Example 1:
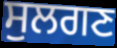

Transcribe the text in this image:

ਸੁਲਗਣ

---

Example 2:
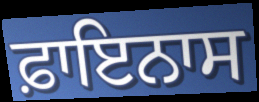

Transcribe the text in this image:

ਫ਼ਾਇਨਾਸ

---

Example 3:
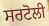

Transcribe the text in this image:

ਸਰਟੋਲੀ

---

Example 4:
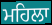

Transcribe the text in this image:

ਮਹਿਲਾ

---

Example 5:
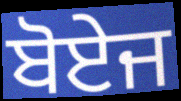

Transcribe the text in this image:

ਬੋਏਜ